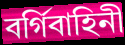
বর্গিবাহিনী